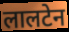
लालटेन